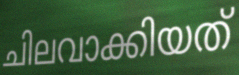
ചിലവാക്കിയത്